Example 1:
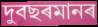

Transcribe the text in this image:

দুবছৰমানৰ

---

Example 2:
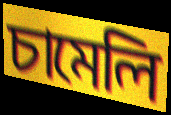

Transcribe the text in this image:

চামেলি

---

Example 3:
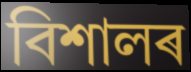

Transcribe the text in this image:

বিশালৰ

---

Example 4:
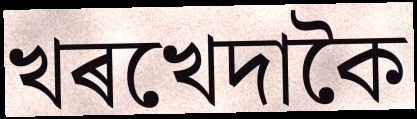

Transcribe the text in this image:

খৰখেদাকৈ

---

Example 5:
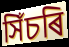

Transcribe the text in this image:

সিঁচৰি